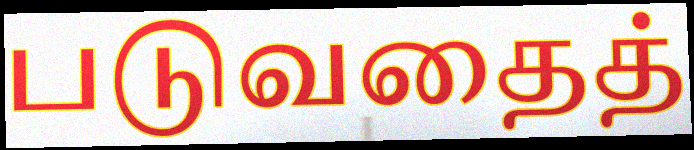
படுவதைத்